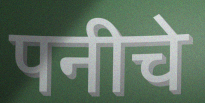
पनीचे